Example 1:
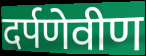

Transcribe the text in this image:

दर्पणेवीण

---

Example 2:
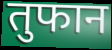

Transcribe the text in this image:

तुफान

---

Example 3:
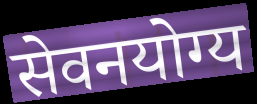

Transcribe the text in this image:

सेवनयोग्य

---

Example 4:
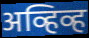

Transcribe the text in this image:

अव्हिव्ह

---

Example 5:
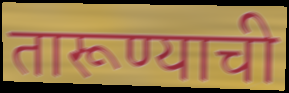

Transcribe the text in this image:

तारूण्याची